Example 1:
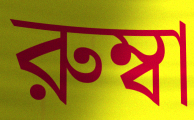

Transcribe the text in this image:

রুম্বা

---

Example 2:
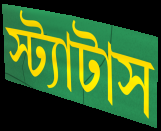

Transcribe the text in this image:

স্ট্যাটাস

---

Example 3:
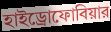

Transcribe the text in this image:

হাইড্রোফোবিয়ার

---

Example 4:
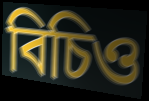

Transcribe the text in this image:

বিচিও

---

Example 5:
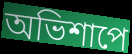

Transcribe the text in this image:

অভিশাপে